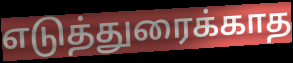
எடுத்துரைக்காத